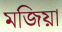
মজিয়া